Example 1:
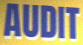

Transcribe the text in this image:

AUDIT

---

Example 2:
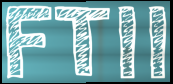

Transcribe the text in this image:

FTII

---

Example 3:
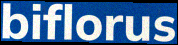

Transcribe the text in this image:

biflorus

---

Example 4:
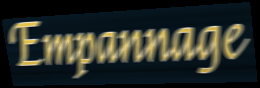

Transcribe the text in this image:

Empannage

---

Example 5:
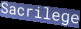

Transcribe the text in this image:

Sacrilege